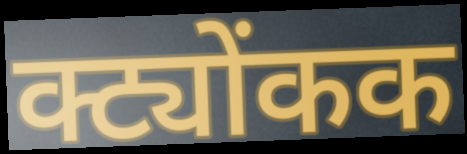
क्ट्योंकक